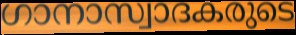
ഗാനാസ്വാദകരുടെ